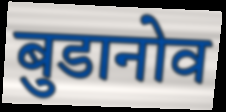
बुडानोव